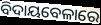
ବିଦାୟବେଳାରେ